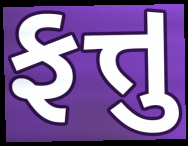
ફત્તુ